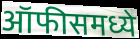
ऑफीसमध्ये